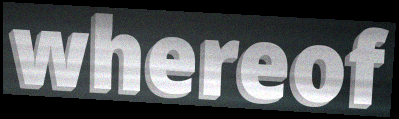
whereof